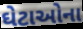
ઘેટાઓના